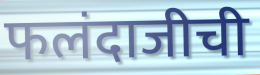
फलंदाजीची